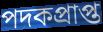
পদকপ্রাপ্ত